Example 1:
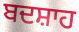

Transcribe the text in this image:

ਬਦਸ਼ਾਹ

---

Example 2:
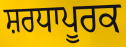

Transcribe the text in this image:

ਸ਼ਰਧਾਪੂਰਕ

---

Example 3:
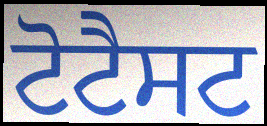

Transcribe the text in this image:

ਟੋਟੈਸਟ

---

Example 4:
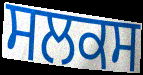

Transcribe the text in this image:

ਸਲਕਸ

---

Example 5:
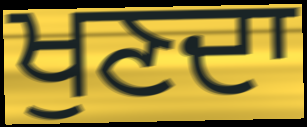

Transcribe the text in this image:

ਖੁਣਦਾ